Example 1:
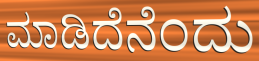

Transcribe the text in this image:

ಮಾಡಿದೆನೆಂದು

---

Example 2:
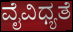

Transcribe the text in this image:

ವೈವಿಧ್ಯತೆ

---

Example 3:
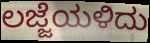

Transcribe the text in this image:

ಲಜ್ಜೆಯಳಿದು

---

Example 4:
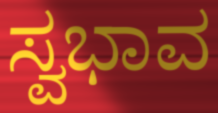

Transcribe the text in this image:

ಸ್ವಭಾವ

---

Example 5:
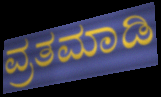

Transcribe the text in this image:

ವ್ರತಮಾಡಿ